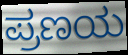
ಪ್ರಣಯ